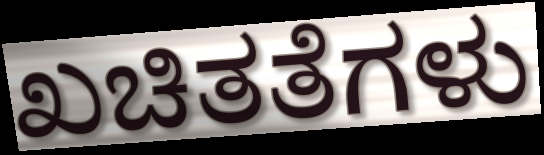
ಖಚಿತತೆಗಳು